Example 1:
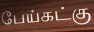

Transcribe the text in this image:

பேய்கட்கு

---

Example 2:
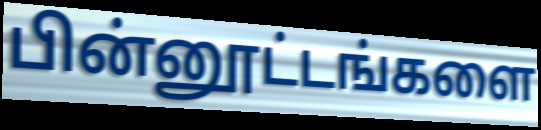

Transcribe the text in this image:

பின்னூட்டங்களை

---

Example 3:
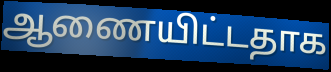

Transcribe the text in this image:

ஆணையிட்டதாக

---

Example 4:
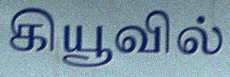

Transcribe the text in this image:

கியூவில்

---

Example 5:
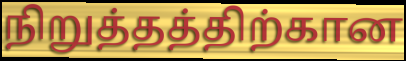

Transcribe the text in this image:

நிறுத்தத்திற்கான